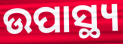
ଉପାସ୍ଥ୍ୟ